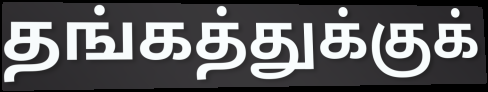
தங்கத்துக்குக்